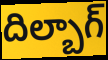
దిల్బాగ్